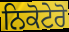
ਨਿਕੋਟੇਰੋ